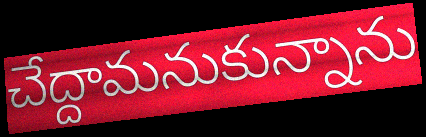
చేద్దామనుకున్నాను